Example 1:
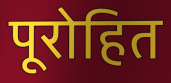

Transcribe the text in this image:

पूरोहित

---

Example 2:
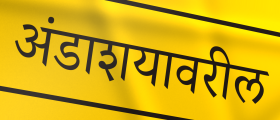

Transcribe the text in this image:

अंडाशयावरील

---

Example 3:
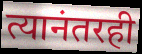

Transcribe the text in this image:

त्यानंतरही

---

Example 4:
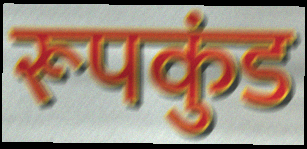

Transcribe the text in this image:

रूपकुंड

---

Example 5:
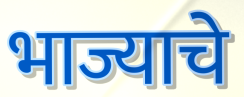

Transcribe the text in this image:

भाज्याचे